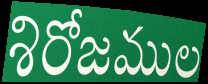
శిరోజముల